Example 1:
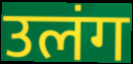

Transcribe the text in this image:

उलंग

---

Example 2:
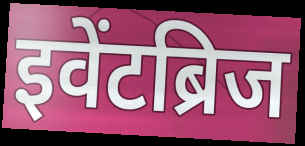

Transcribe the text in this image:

इवेंटब्रिज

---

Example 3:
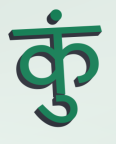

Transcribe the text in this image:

कुं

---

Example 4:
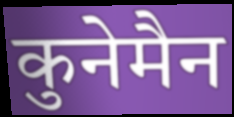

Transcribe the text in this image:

कुनेमैन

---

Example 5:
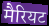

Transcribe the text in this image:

मैरियट